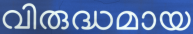
വിരുദ്ധമായ